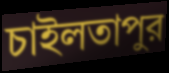
চাইলতাপুর